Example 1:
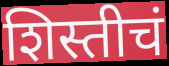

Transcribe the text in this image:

शिस्तीचं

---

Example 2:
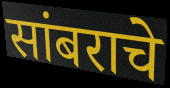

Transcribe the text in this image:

सांबराचे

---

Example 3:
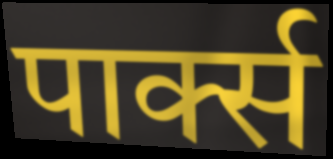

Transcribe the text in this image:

पार्क्‍स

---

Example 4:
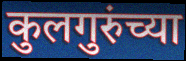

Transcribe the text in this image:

कुलगुरुंच्या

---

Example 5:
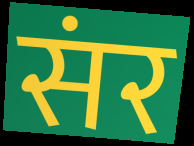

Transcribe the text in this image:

संर